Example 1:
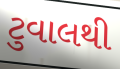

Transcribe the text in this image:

ટુવાલથી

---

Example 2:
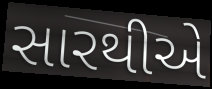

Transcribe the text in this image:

સારથીએ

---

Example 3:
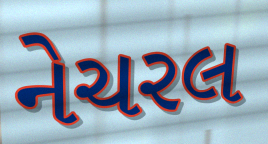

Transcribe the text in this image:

નેચરલ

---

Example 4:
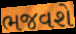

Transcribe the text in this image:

ભજવશે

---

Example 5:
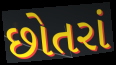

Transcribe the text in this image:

છોતરાં